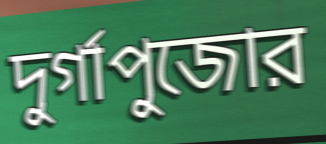
দুর্গাপুজোর